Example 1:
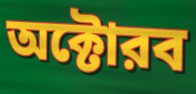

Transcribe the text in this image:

অক্টোরব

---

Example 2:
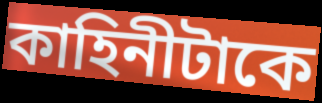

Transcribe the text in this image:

কাহিনীটাকে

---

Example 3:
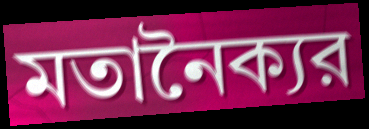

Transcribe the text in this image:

মতানৈক্যর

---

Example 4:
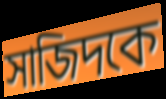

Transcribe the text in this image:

সাজিদকে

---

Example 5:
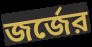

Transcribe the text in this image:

জর্জের